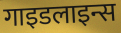
गाइडलाइन्स